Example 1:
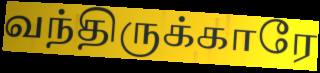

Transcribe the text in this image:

வந்திருக்காரே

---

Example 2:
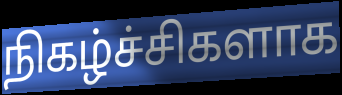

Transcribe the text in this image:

நிகழ்ச்சிகளாக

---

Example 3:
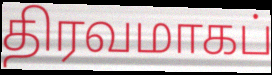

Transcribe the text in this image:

திரவமாகப்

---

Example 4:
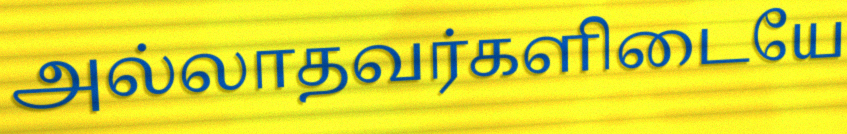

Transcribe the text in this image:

அல்லாதவர்களிடையே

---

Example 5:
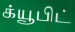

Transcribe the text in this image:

க்யூபிட்